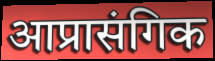
आप्रासंगिक